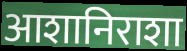
आशानिराशा